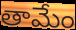
తామేం